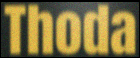
Thoda